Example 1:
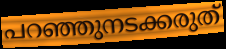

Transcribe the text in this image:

പറഞ്ഞുനടക്കരുത്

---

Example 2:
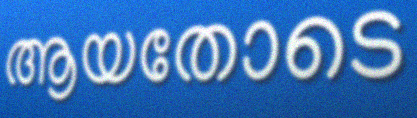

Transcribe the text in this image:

ആയതോടെ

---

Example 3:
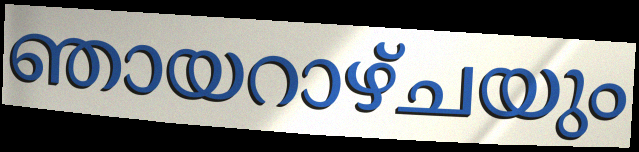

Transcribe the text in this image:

ഞായറാഴ്ചയും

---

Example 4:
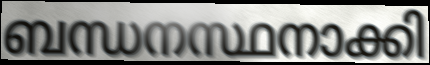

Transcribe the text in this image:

ബന്ധനസ്ഥനാക്കി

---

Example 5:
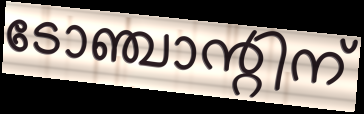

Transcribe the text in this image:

ടോഞ്ചാന്റിന്